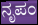
ನೃಪಂ